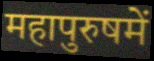
महापुरुषमें